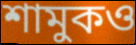
শামুকও